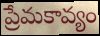
ప్రేమకావ్యం